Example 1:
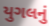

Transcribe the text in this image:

યુગલનું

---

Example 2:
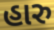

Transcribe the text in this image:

હારુ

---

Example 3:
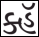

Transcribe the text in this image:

ક્હૅ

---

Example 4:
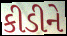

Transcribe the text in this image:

કીડીને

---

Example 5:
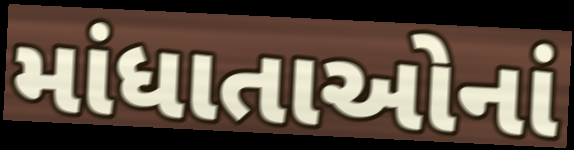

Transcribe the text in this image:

માંધાતાઓનાં